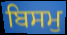
ਬਿਸਮੁ